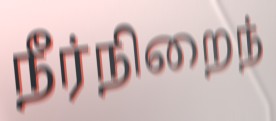
நீர்நிறைந்